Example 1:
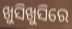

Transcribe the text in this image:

ଖୁସିଖୁସିରେ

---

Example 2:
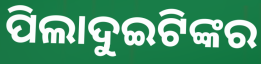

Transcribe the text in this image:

ପିଲାଦୁଇଟିଙ୍କର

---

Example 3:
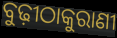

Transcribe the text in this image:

ବୁଢ଼ୀଠାକୁରାଣୀ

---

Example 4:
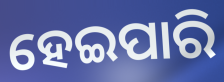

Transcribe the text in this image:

ହେଇପାରି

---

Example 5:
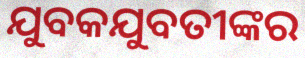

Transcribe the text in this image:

ଯୁବକଯୁବତୀଙ୍କର